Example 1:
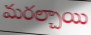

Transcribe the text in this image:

మరల్చాయి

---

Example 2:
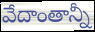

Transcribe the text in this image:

వేదాంతాన్నీ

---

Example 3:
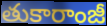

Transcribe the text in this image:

తుకారాంజీ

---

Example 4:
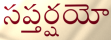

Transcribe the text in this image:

సప్తర్షయో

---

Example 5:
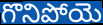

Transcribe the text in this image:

గొనిపోయె